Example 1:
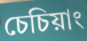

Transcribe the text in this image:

চেচিয়াং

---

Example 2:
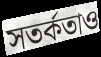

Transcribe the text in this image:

সতর্কতাও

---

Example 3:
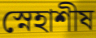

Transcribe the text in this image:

স্নেহাশীষ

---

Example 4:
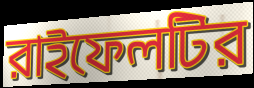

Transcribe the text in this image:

রাইফেলটির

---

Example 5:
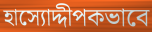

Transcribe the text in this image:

হাস্যোদ্দীপকভাবে